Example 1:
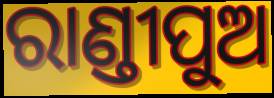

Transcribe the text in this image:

ରାଣ୍ଡୀପୁଅ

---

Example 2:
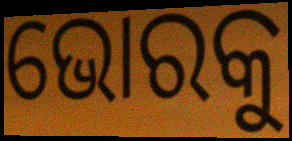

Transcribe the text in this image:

ଭୋରକୁ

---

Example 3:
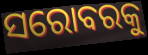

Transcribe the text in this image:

ସରୋବରକୁ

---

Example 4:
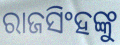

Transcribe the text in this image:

ରାଜସିଂହଙ୍କୁ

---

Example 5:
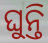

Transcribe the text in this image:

ଘୁନ୍ତି